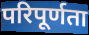
परिपूर्णता